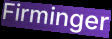
Firminger